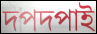
দপদপাই